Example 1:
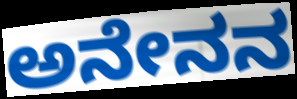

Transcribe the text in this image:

ಅನೇನನ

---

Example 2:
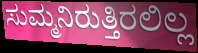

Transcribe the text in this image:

ಸುಮ್ಮನಿರುತ್ತಿರಲಿಲ್ಲ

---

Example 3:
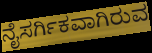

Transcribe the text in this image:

ನೈಸರ್ಗಿಕವಾಗಿರುವ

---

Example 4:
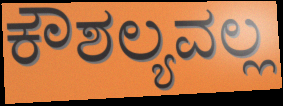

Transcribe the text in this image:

ಕೌಶಲ್ಯವಲ್ಲ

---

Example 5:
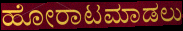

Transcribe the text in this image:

ಹೋರಾಟಮಾಡಲು